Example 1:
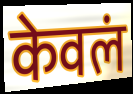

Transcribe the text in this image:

केवलं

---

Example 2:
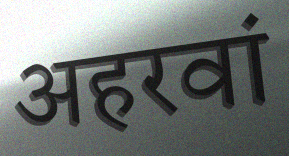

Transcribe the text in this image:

अहरवां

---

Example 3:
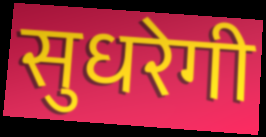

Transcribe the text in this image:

सुधरेगी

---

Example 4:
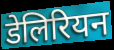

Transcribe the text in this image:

डेलिरियन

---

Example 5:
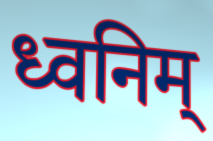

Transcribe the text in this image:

ध्वनिम्